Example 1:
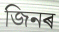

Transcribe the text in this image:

জিনৰ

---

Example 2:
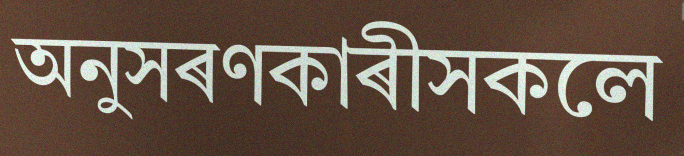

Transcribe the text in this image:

অনুসৰণকাৰীসকলে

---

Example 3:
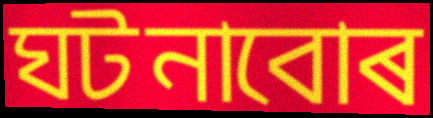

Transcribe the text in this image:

ঘটনাবোৰ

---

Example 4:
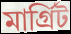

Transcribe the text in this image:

মাৰ্গ্ৰিট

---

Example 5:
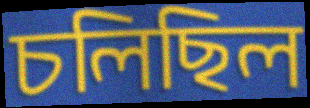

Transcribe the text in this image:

চলিছিল